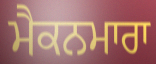
ਮੈਕਨਮਾਰਾ